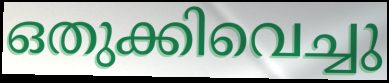
ഒതുക്കിവെച്ചു